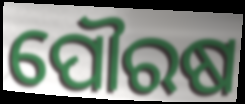
ପୌରଷ